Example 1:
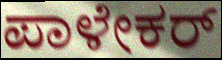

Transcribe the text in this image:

ಪಾಳೇಕರ್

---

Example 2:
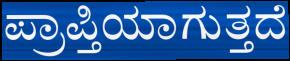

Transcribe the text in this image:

ಪ್ರಾಪ್ತಿಯಾಗುತ್ತದೆ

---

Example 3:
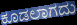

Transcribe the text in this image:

ಕೂಡಲಾಗದು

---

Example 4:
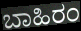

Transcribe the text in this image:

ಬಾಹಿರಂ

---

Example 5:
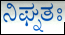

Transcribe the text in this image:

ನಿಘ್ನತಃ